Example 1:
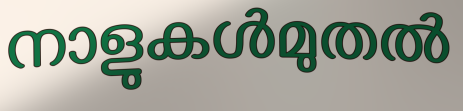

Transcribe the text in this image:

നാളുകൾമുതൽ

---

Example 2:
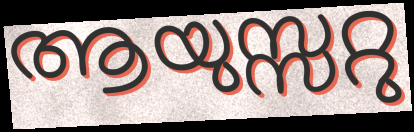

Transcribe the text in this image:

ആയുസ്സറ്റു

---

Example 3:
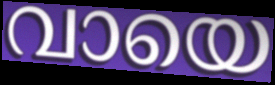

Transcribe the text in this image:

വായെ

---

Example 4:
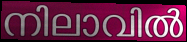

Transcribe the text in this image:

നിലാവിൽ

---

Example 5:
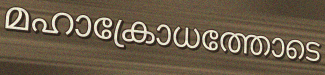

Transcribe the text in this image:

മഹാക്രോധത്തോടെ